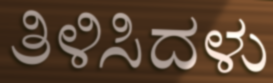
ತಿಳಿಸಿದಳು